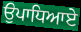
ਉਪਾਧਿਆਏ